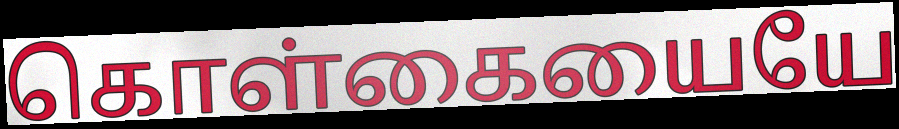
கொள்கையையே